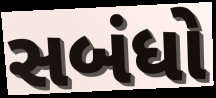
સબંધો